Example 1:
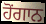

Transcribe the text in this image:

ਹੋਂਗਾਨ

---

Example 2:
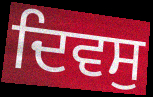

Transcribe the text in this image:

ਦਿਵਸੁ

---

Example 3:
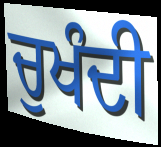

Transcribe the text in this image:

ਚੁਖੰਦੀ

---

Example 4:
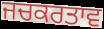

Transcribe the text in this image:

ਜਚਕਰਤਾਵ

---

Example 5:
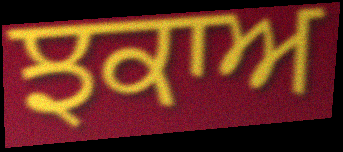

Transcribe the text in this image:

ਝਕਾਅ